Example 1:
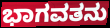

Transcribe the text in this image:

ಭಾಗವತನು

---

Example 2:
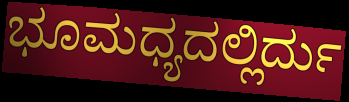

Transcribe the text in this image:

ಭೂಮಧ್ಯದಲ್ಲಿರ್ದು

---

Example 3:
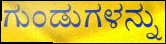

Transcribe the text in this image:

ಗುಂಡುಗಳನ್ನು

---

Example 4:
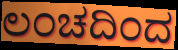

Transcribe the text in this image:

ಲಂಚದಿಂದ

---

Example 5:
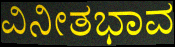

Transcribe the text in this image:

ವಿನೀತಭಾವ